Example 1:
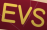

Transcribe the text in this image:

EVS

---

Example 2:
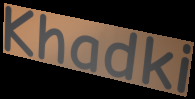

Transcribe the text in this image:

Khadki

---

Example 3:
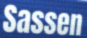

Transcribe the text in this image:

Sassen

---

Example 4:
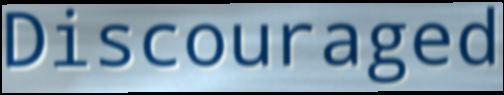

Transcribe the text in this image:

Discouraged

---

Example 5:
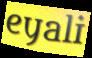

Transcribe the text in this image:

eyali